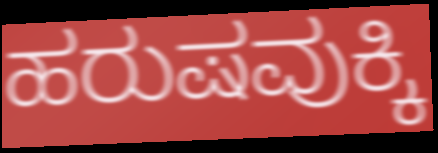
ಹರುಷವುಕ್ಕಿ